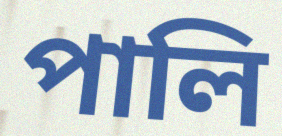
পালি